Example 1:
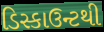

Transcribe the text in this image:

ડિસ્કાઉન્ટથી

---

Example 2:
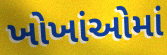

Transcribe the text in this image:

ખોખાંઓમાં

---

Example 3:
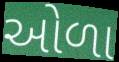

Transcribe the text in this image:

ઓળા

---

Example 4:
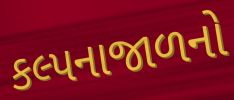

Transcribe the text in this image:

કલ્પનાજાળનો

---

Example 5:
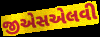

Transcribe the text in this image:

જીએસએલવી